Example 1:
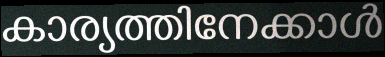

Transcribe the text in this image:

കാര്യത്തിനേക്കാൾ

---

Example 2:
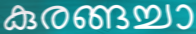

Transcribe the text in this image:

കുരങ്ങച്ചാ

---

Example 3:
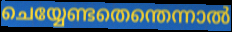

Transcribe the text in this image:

ചെയ്യേണ്ടതെന്തെന്നാൽ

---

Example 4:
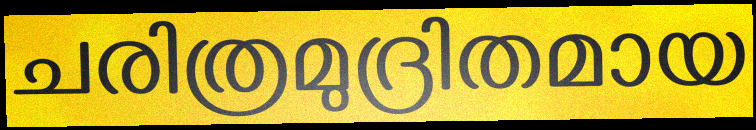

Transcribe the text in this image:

ചരിത്രമുദ്രിതമായ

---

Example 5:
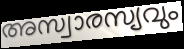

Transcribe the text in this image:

അസ്വാരസ്യവും